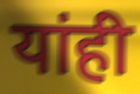
यांही